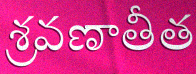
శ్రవణాతీత